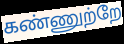
கண்ணுற்றே